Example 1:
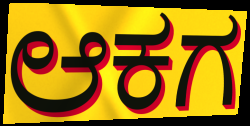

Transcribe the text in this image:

ಆಕಗ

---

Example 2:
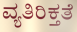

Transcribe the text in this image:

ವ್ಯತಿರಿಕ್ತತೆ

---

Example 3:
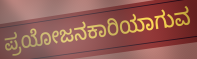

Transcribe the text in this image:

ಪ್ರಯೋಜನಕಾರಿಯಾಗುವ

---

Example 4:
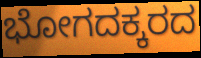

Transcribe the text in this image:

ಭೋಗದಕ್ಕರದ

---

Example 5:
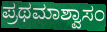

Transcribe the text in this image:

ಪ್ರಥಮಾಶ್ವಾಸಂ